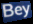
Bey